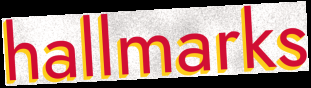
hallmarks